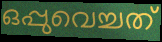
ഒപ്പുവെച്ചത്